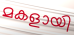
മകളായി